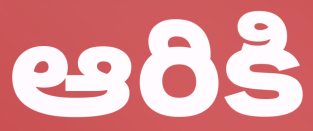
ఆరికి